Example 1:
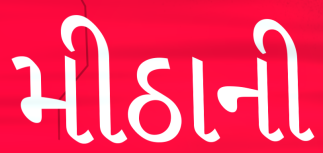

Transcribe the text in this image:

મીઠાની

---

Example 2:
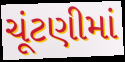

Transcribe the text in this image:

ચૂંટણીમાં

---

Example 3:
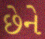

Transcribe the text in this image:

છેને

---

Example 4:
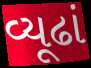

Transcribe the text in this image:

વ્યૂઢાં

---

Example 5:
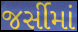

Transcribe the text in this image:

જર્સીમાં